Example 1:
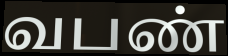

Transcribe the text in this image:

வபண்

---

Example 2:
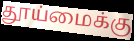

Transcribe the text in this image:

தூய்மைக்கு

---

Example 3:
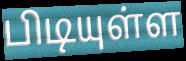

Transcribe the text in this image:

பிடியுள்ள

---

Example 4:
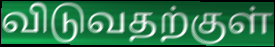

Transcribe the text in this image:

விடுவதற்குள்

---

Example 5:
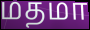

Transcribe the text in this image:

மதமா